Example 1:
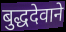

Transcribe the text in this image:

बुद्धदेवाने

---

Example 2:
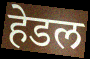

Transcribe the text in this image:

हेडल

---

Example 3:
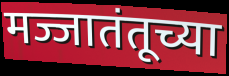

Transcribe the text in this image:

मज्जातंतूच्या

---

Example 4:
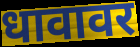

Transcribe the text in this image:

धावावर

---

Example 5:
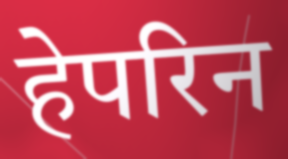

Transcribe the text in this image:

हेपरिन